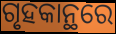
ଗୃହକାନ୍ଥରେ